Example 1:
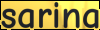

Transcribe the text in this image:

sarina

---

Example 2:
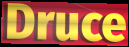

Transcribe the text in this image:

Druce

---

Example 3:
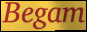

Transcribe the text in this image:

Begam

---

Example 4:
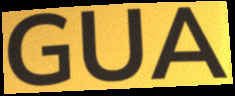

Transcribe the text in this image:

GUA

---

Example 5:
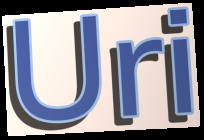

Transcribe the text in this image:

Uri